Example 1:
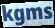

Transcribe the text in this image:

kgms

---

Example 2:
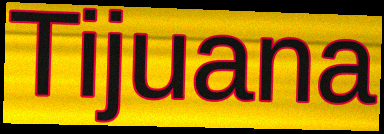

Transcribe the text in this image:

Tijuana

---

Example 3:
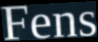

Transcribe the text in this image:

Fens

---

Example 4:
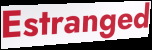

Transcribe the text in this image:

Estranged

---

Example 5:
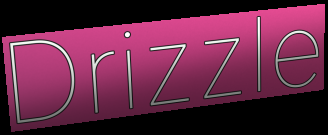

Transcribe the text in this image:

Drizzle